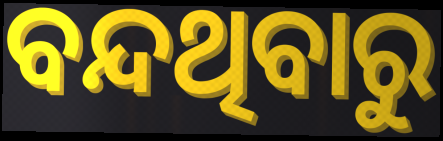
ବନ୍ଦଥିବାରୁ